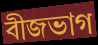
বীজভাগ